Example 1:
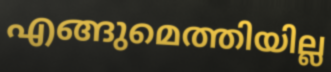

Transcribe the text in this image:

എങ്ങുമെത്തിയില്ല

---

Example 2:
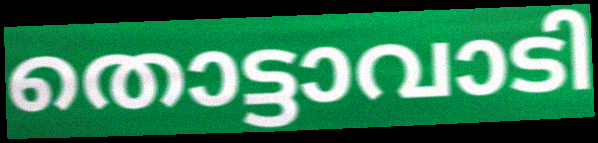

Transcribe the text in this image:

തൊട്ടാവാടി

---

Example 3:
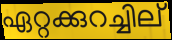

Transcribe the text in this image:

ഏറ്റക്കുറച്ചില്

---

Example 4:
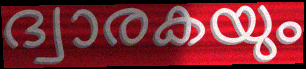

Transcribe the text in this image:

ദ്വാരകയും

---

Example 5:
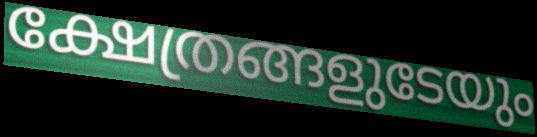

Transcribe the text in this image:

ക്ഷേത്രങ്ങളുടേയും